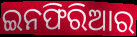
ଇନଫିରିଆର